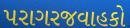
પરાગરજવાહકો